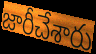
జారీచేశారు